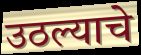
उठल्याचे